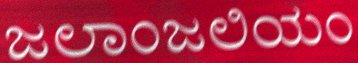
ಜಲಾಂಜಲಿಯಂ